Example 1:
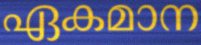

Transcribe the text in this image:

ഏകമാന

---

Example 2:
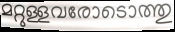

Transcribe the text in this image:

മറ്റുള്ളവരോടൊത്തു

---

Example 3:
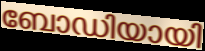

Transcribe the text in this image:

ബോഡിയായി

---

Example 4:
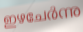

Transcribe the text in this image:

ഇഴചേർന്നു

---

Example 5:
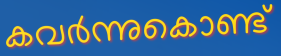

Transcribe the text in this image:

കവർന്നുകൊണ്ട്